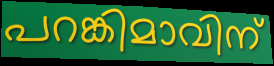
പറങ്കിമാവിന്